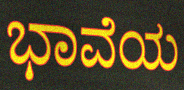
ಭಾವೆಯ